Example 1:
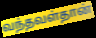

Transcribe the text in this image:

வந்தவள்தான்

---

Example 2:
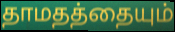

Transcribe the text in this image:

தாமதத்தையும்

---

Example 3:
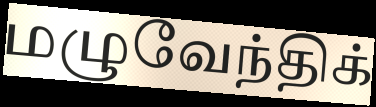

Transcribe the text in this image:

மழுவேந்திக்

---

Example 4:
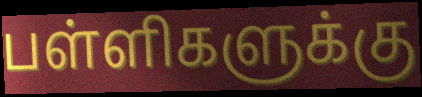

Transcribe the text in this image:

பள்ளிகளுக்கு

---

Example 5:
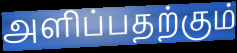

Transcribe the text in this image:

அளிப்பதற்கும்